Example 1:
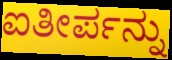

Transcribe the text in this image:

ಐತೀರ್ಪನ್ನು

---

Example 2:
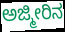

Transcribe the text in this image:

ಅಜ್ಮೀರಿನ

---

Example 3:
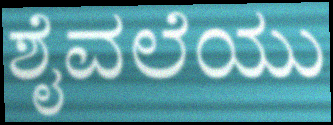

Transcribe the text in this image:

ಶೈವಲೆಯು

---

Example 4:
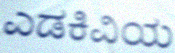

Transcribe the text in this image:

ಎಡಕಿವಿಯ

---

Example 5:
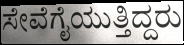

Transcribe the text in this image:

ಸೇವೆಗೈಯುತ್ತಿದ್ದರು